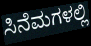
ಸಿನೆಮಗಳಲ್ಲಿ